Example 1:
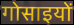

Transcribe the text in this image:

गोसाइयों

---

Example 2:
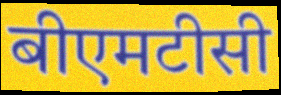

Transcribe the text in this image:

बीएमटीसी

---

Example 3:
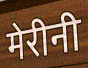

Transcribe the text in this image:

मेरीनी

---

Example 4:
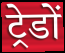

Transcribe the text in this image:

ट्रेडों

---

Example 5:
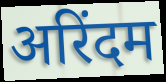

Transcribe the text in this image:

अरिंदम